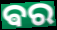
ଵର